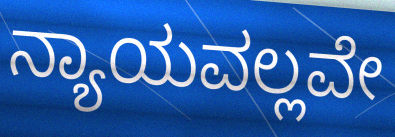
ನ್ಯಾಯವಲ್ಲವೇ